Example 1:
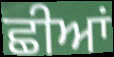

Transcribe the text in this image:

ਛੀਆਂ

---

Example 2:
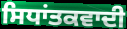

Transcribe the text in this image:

ਸਿਧਾਂਤਕਵਾਦੀ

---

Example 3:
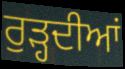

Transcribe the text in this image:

ਰੁੜ੍ਹਦੀਆਂ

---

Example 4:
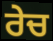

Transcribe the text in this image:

ਰੇਚ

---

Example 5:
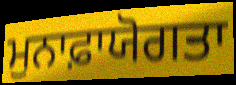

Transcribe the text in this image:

ਮੁਨਾਫ਼ਾਯੋਗਤਾ